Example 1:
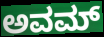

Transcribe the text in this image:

ಅವಮ್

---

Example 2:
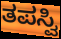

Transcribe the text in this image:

ತಪಸ್ವಿ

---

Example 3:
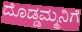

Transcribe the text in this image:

ದೊಡ್ಡಮ್ಮನಿಗೆ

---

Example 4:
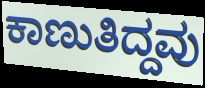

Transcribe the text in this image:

ಕಾಣುತಿದ್ದವು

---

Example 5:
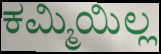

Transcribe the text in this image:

ಕಮ್ಮಿಯಿಲ್ಲ